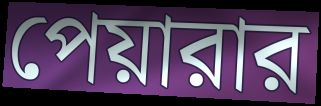
পেয়ারার